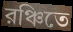
রঞ্চিতে